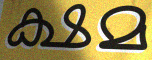
ക്ഷമ